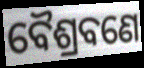
ବୈଶ୍ରବଣେ